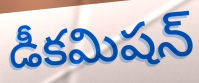
డీకమిషన్